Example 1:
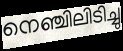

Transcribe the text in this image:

നെഞ്ചിലിടിച്ചു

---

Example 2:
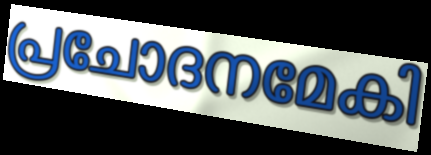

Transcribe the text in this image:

പ്രചോദനമേകി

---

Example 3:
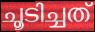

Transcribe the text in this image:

ചൂടിച്ചത്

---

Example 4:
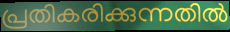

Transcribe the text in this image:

പ്രതികരിക്കുന്നതിൽ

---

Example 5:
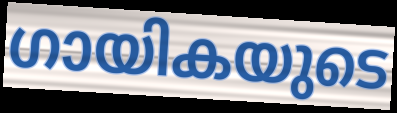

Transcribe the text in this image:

ഗായികയുടെ